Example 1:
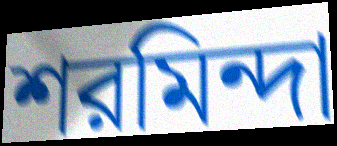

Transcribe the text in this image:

শরমিন্দা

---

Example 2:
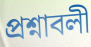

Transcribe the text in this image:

প্রশ্নাবলী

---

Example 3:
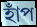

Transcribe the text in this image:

হাঁপ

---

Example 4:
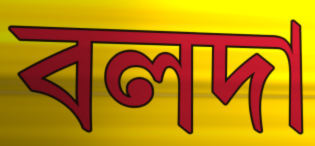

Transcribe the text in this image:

বলদা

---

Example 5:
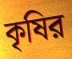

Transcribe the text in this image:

কৃষির